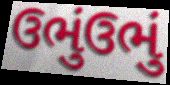
ઉભુંઉભું